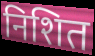
निशित